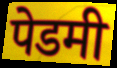
पेडमी